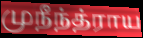
முநீந்த்ராய